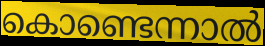
കൊണ്ടെന്നാൽ